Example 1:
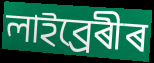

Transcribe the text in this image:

লাইব্ৰেৰীৰ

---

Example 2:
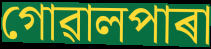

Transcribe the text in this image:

গোৱালপাৰা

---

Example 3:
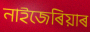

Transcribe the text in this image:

নাইজেৰিয়াৰ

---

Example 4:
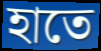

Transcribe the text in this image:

হাতে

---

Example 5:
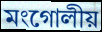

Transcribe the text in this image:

মংগোলীয়